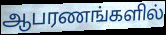
ஆபரணங்களில்